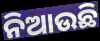
ନିଆଉଛି